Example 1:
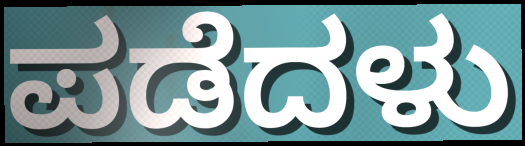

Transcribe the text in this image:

ಪಡೆದಳು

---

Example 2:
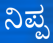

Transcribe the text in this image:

ನಿಪ್ಪ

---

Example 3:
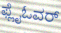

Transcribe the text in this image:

ಫ್ಲೈಓವರ್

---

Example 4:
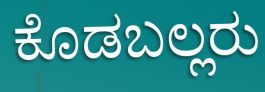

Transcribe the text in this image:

ಕೊಡಬಲ್ಲರು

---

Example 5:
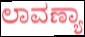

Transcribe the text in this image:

ಲಾವಣ್ಯಾ